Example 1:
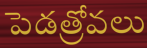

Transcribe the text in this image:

పెడత్రోవలు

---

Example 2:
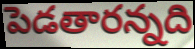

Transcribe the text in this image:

పెడతారన్నది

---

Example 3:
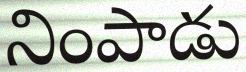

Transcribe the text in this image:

నింపాడు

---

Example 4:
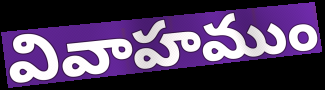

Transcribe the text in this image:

వివాహముం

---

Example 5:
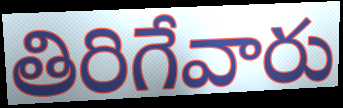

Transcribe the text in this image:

తిరిగేవారు